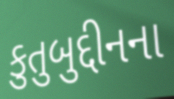
કુતુબુદ્દીનના